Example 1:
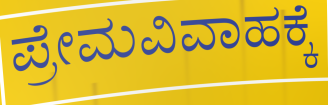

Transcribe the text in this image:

ಪ್ರೇಮವಿವಾಹಕ್ಕೆ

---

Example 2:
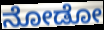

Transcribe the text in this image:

ನೋಡೋ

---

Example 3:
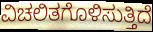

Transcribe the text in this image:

ವಿಚಲಿತಗೊಳಿಸುತ್ತಿದೆ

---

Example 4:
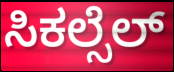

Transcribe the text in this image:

ಸಿಕಲ್ಸೆಲ್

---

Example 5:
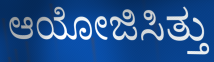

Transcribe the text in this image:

ಆಯೋಜಿಸಿತ್ತು